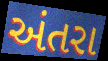
અંતરા